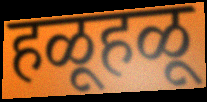
हळूहळू